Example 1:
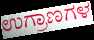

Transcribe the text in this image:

ಉಗ್ರಾಣಗಳ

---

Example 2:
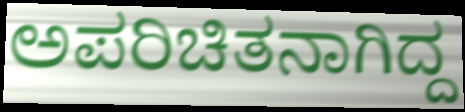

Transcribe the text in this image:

ಅಪರಿಚಿತನಾಗಿದ್ದ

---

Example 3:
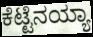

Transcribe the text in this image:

ಕೆಟ್ಟೆನಯ್ಯಾ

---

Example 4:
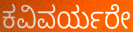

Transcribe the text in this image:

ಕವಿವರ್ಯರೇ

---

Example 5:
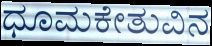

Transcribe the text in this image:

ಧೂಮಕೇತುವಿನ